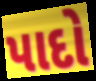
પાદો